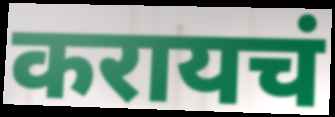
करायचं